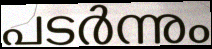
പടർന്നും